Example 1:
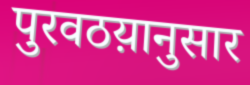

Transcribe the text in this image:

पुरवठय़ानुसार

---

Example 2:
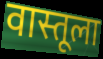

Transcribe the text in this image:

वास्तूला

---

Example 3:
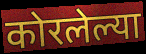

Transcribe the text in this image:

कोरलेल्या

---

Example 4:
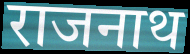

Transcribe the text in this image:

राजनाथ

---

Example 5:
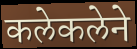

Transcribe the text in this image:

कलेकलेने